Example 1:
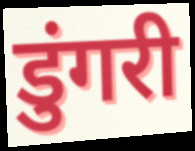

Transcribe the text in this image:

डुंगरी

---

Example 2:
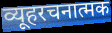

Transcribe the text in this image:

व्यूहरचनात्मक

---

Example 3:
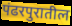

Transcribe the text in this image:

पंढरपुरातील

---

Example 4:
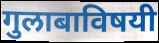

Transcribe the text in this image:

गुलाबाविषयी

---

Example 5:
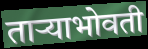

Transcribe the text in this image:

ताऱ्याभोवती